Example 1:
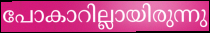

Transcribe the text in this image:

പോകാറില്ലായിരുന്നു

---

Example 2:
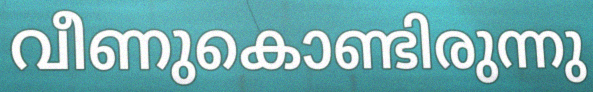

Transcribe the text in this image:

വീണുകൊണ്ടിരുന്നു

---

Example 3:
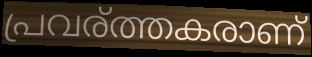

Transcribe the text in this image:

പ്രവര്ത്തകരാണ്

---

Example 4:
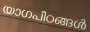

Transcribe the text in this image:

യാഗപീഠങ്ങൾ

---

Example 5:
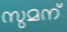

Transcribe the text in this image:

സുമന്